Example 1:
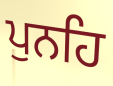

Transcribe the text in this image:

ਪੁਨਹਿ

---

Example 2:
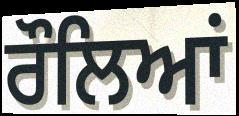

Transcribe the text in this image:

ਰੌਲਿਆਂ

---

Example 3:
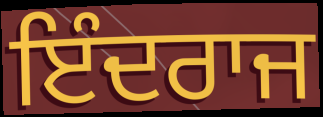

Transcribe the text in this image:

ਇੰਦਰਾਜ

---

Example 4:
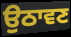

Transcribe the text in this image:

ਉਠਾਵਣ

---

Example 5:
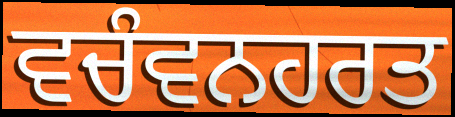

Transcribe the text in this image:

ਵਚੰਵਨਹਰਤ